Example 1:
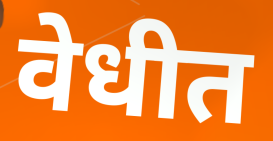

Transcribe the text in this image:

वेधीत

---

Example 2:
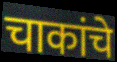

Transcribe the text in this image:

चाकांचे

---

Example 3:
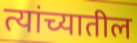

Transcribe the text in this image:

त्यांच्यातील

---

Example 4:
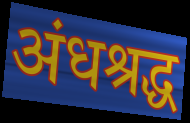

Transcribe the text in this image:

अंधश्रद्ध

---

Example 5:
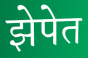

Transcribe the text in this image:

झेपेत